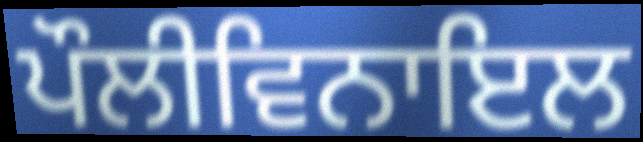
ਪੌਲੀਵਿਨਾਇਲ